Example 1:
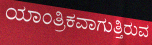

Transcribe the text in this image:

ಯಾಂತ್ರಿಕವಾಗುತ್ತಿರುವ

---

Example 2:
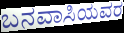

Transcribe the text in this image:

ಬನವಾಸಿಯವರ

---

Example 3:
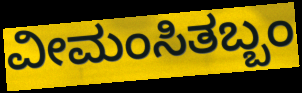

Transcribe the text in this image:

ವೀಮಂಸಿತಬ್ಬಂ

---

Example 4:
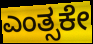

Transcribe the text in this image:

ಎಂತ್ಸಕೇ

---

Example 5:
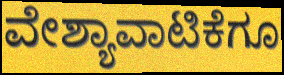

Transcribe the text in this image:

ವೇಶ್ಯಾವಾಟಿಕೆಗೂ